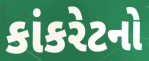
કાંકરેટનો